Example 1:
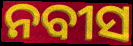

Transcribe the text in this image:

ନବୀସ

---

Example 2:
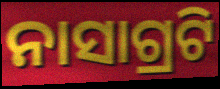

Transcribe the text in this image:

ନାସାଗ୍ରଟି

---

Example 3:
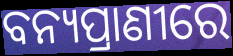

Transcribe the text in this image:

ବନ୍ୟପ୍ରାଣୀରେ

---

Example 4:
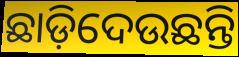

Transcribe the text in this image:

ଛାଡ଼ିଦେଉଛନ୍ତି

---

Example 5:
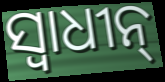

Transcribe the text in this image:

ସ୍ଵାଧୀନ୍